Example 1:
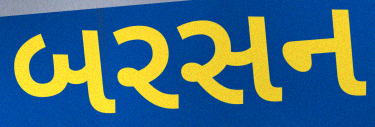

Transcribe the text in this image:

બરસન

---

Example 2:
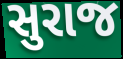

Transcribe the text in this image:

સુરાજ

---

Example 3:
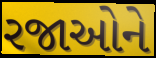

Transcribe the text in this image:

રજાઓને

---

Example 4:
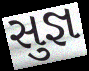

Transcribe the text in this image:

સુજ્ઞ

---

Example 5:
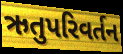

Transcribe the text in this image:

ઋતુપરિવર્તન